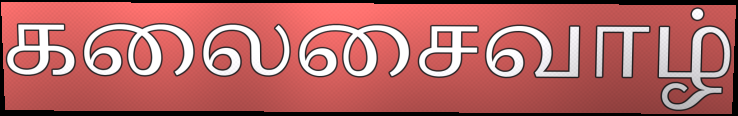
கலைசைவாழ்